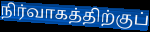
நிர்வாகத்திற்குப்